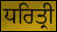
ਧਰਿਤ੍ਰੀ